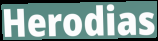
Herodias